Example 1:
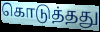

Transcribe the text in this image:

கொடுத்தது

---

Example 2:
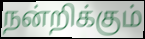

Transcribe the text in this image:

நன்றிக்கும்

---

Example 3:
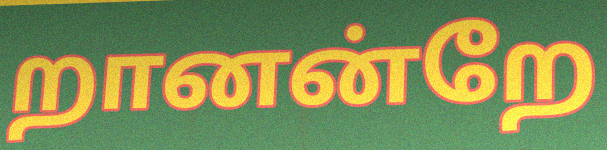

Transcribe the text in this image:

றானன்றே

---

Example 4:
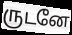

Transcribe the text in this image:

ருடனே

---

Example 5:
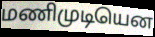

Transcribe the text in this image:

மணிமுடியென